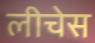
लीचेस